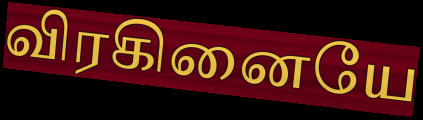
விரகினையே